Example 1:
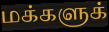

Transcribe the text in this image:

மக்களுக்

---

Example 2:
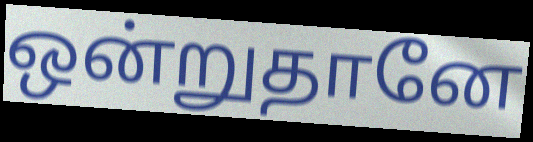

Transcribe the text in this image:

ஒன்றுதானே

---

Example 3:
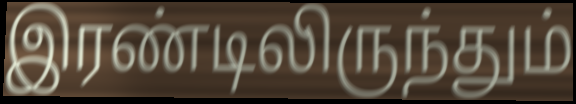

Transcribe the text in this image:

இரண்டிலிருந்தும்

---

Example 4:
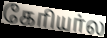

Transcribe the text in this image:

கேரியர்ல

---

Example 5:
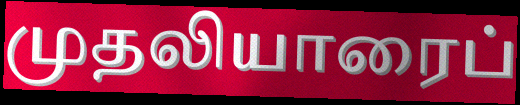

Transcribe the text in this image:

முதலியாரைப்